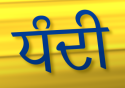
ਧੰਦੀ